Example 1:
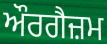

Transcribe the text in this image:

ਔਰਗੈਜ਼ਮ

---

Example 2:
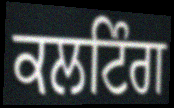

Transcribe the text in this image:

ਕਲਟਿੰਗ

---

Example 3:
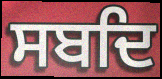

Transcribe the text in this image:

ਸਬਦਿ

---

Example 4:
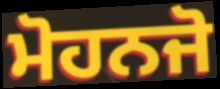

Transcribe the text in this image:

ਮੋਹਨਜੋ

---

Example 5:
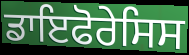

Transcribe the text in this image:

ਡਾਇਫੋਰੇਸਿਸ